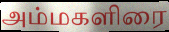
அம்மகளிரை